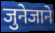
जुनेजाने